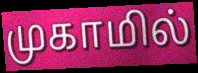
முகாமில்